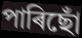
পাৰিছোঁ